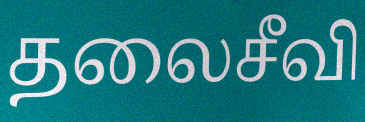
தலைசீவி